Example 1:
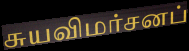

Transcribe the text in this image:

சுயவிமர்சனப்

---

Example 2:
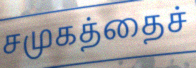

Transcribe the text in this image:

சமுகத்தைச்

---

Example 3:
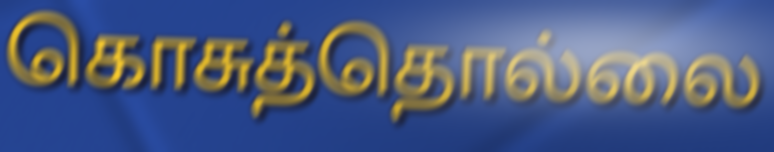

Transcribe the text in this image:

கொசுத்தொல்லை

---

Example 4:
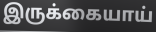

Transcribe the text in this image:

இருக்கையாய்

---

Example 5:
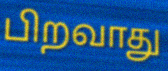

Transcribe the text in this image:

பிறவாது